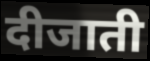
दीजाती